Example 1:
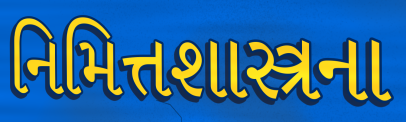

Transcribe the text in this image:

નિમિત્તશાસ્ત્રના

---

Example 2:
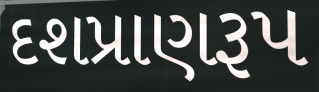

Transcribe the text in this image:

દશપ્રાણરૂપ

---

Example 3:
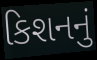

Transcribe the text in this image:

કિશનનું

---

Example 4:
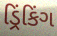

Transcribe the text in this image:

ડ્રિંકિંગ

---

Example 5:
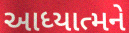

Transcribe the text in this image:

આધ્યાત્મને